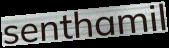
senthamil